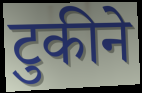
टुकीने